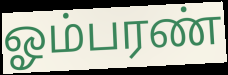
ஓம்பரண்